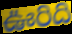
ఊరిది